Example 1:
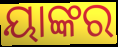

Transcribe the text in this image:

ୟାଙ୍କର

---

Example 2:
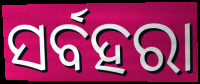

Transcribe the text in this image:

ସର୍ବହରା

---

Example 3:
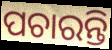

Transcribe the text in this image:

ପଚାରନ୍ତି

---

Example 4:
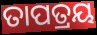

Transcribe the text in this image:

ତାପତ୍ରୟ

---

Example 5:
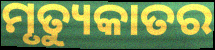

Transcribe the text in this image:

ମୃତ୍ୟୁକାତର